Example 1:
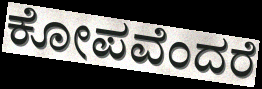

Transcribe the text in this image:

ಕೋಪವೆಂದರೆ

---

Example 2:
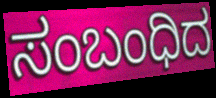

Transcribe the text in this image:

ಸಂಬಂಧಿದ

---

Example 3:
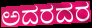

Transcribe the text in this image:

ಅದರದರ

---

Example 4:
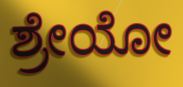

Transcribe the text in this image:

ಶ್ರೇಯೋ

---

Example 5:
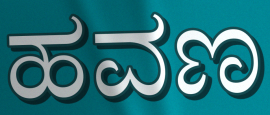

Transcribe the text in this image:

ಹವಣ